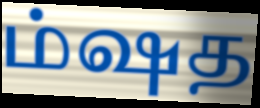
ம்ஷத